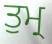
ਤੁਮ੍ਰ